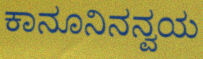
ಕಾನೂನಿನನ್ವಯ